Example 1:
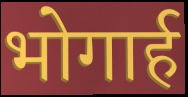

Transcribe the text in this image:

भोगार्ह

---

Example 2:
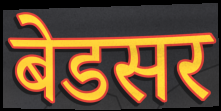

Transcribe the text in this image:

बेडसर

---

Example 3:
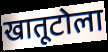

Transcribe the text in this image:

खातूटोला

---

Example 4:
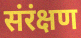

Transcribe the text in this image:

संरंक्षण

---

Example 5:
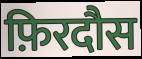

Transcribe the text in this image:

फ़िरदौस